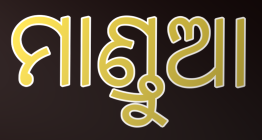
ମାଣ୍ଡୁଆ